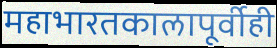
महाभारतकालापूर्वीही